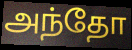
அந்தோ